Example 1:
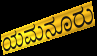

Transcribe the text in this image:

ಯಮನೂರು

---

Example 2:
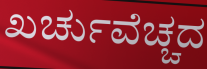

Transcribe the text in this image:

ಖರ್ಚುವೆಚ್ಚದ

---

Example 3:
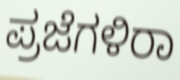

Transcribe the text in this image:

ಪ್ರಜೆಗಳಿರಾ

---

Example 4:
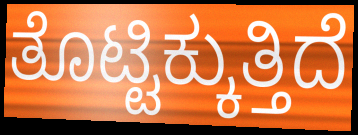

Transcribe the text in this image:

ತೊಟ್ಟಿಕ್ಕುತ್ತಿದೆ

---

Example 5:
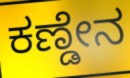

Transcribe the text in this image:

ಕಣ್ಡೇನ